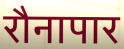
रौनापार